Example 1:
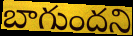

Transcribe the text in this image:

బాగుందని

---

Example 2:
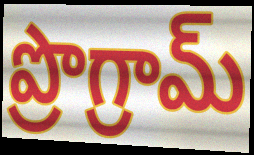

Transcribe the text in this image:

ప్రొగ్రామ్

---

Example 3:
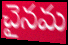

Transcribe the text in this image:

చైనమ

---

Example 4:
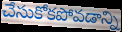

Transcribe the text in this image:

చేసుకోకపోవడాన్ని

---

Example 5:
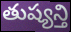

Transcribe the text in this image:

తుష్యన్తి